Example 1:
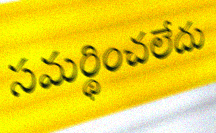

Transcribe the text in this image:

సమర్థించలేదు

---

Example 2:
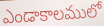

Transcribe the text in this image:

ఎండాకాలములో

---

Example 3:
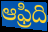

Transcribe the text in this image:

ఆఫ్రిది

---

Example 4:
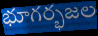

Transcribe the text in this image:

భూగర్భజల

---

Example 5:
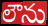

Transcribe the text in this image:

లౌను